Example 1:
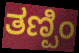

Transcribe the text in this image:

ತಣ್ಪಿಂ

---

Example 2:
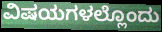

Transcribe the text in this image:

ವಿಷಯಗಳಲ್ಲೊಂದು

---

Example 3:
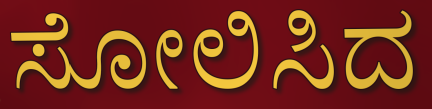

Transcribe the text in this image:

ಸೋಲಿಸಿದ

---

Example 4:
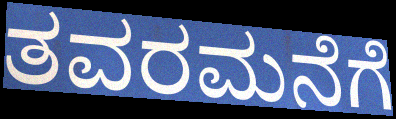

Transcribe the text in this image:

ತವರಮನೆಗೆ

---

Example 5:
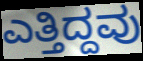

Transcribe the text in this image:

ಎತ್ತಿದ್ದವು